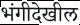
भंगीदेखील